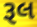
રૂલ